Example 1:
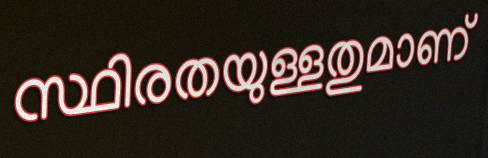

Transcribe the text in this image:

സ്ഥിരതയുള്ളതുമാണ്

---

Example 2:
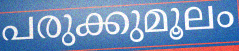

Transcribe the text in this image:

പരുക്കുമൂലം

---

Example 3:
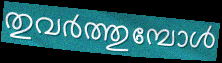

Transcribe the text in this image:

തുവർത്തുമ്പോൾ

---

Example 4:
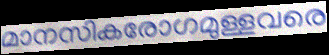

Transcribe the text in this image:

മാനസികരോഗമുള്ളവരെ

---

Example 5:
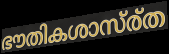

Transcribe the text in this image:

ഭൗതികശാസ്ര്ത